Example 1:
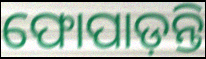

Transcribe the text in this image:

ଫୋପାଡ଼ନ୍ତି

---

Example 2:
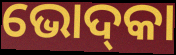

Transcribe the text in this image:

ଭୋଦ୍‌କା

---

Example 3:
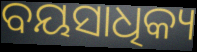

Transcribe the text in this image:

ବୟସାଧିକ୍ୟ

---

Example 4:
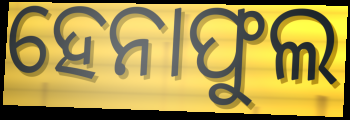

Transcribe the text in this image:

ହେନାଫୁଲ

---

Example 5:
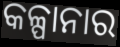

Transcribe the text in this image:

କଳ୍ପାନାର